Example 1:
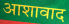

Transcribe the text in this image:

आशावाद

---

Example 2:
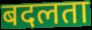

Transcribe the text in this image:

बदलता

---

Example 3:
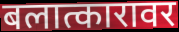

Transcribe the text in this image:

बलात्कारावर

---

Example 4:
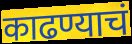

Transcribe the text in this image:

काढण्याचं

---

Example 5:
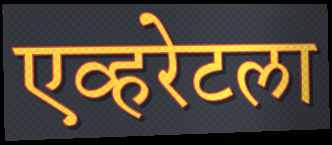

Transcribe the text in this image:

एव्हरेटला